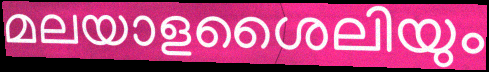
മലയാളശൈലിയും